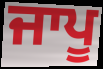
ਜਾਪੂ